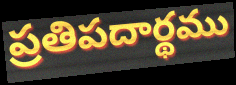
ప్రతిపదార్థము